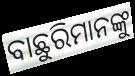
ବାଛୁରିମାନଙ୍କୁ